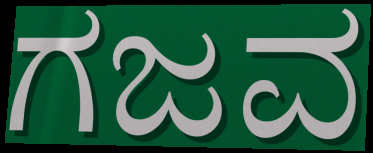
ಗಜವ